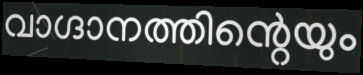
വാഗ്ദാനത്തിന്റെയും